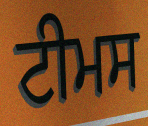
ਟੀਮਸ